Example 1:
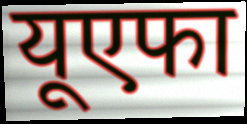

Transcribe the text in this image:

यूएफा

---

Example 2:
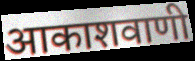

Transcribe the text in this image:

आकाशवाणी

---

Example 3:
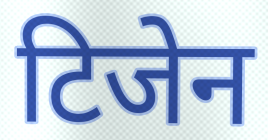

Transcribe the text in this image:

टिजेन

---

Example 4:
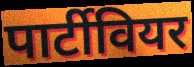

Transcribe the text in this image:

पार्टीवियर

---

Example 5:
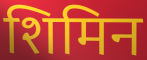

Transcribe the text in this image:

शिमिन